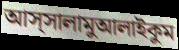
আস্সালামুআলাইকুম